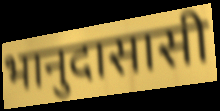
भानुदासासी